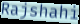
Rajshahi